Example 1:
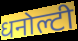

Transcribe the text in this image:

धनोल्‍टी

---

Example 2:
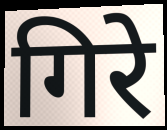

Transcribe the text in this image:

गिरे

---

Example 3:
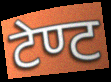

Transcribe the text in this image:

टेण्ट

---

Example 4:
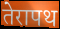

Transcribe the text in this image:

तेरापथ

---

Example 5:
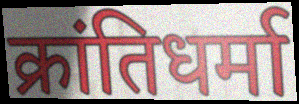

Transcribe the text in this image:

क्रांतिधर्मा